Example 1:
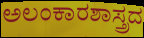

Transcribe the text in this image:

ಅಲಂಕಾರಶಾಸ್ತ್ರದ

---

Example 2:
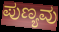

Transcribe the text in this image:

ಪುಣ್ಯವು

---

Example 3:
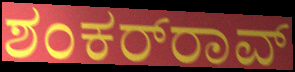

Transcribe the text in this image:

ಶಂಕರ್‌ರಾವ್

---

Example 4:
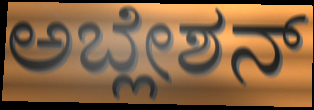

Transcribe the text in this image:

ಅಬ್ಲೇಶನ್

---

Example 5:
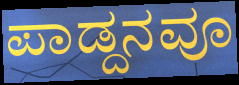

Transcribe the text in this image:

ಪಾಡ್ದನವೂ